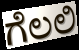
ಗೆಲಲಿ